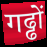
गढ्ढों